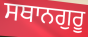
ਸਥਾਨਗੁਰੂ